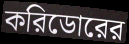
করিডোরের